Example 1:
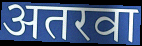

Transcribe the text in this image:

अतरवा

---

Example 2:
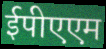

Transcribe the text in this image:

ईपीएएम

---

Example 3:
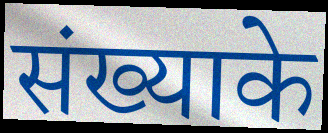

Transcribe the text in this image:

संख्याके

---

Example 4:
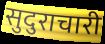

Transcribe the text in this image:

सुदुराचारी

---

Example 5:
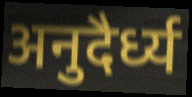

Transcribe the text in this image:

अनुदैर्ध्य